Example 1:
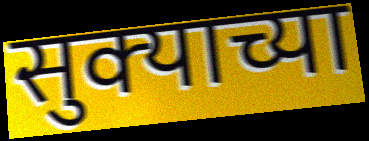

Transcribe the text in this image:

सुक्‍याच्या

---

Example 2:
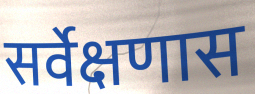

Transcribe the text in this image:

सर्वेक्षणास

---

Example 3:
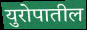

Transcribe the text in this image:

युरोपातील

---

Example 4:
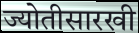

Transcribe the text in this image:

ज्योतीसारखी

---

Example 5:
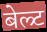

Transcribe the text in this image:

बेल्ट